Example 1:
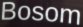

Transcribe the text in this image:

Bosom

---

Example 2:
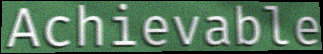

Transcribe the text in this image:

Achievable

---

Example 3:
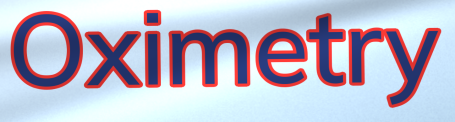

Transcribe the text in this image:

Oximetry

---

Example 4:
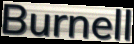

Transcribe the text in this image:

Burnell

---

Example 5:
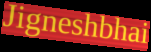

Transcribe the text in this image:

Jigneshbhai